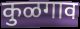
कुळगाव